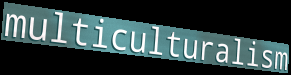
multiculturalism